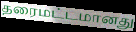
தரைமட்டமானது